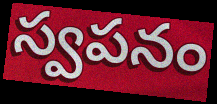
స్వపనం